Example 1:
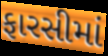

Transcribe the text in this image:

ફારસીમાં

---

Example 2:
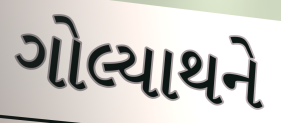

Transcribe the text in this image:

ગોલ્યાથને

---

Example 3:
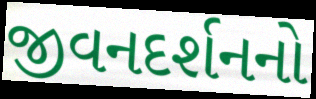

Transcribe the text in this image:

જીવનદર્શનનો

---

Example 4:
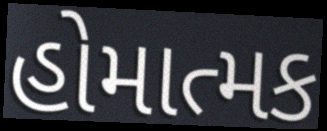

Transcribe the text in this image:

હોમાત્મક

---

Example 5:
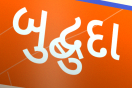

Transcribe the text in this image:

બુદ્બુદા